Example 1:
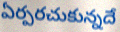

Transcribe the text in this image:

ఏర్పరచుకున్నదే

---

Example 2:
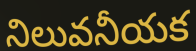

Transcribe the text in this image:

నిలువనీయక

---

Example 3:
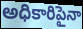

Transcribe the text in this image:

అధికారిపైనా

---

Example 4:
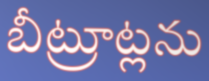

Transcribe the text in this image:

బీట్రూట్లను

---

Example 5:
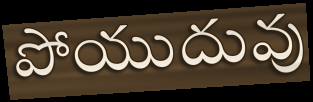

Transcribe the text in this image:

పోయుదువు